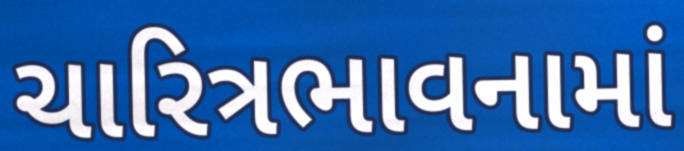
ચારિત્રભાવનામાં